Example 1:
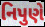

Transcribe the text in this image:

નિપુણે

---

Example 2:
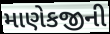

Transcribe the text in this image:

માણેકજીની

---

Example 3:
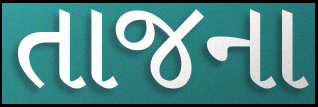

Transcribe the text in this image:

તાજના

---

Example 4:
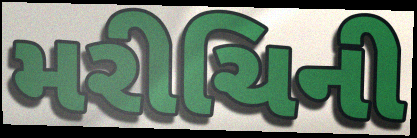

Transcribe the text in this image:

મરીચિની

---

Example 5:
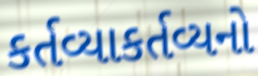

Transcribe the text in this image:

કર્તવ્યાકર્તવ્યનો